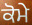
ਕੋਮੇ